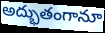
అద్భుతంగానూ